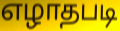
எழாதபடி